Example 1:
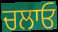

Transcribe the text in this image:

ਚਲਾਓ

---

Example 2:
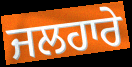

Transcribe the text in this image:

ਜਲਹਾਰੇ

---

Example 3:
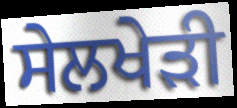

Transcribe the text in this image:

ਸੇਲਖੇੜੀ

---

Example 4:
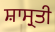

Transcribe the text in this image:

ਸ਼ਾਸ੍ਰਤੀ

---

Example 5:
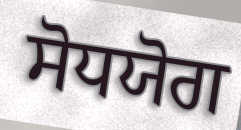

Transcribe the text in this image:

ਸੋਧਯੋਗ